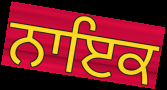
ਨਾਇਕ